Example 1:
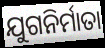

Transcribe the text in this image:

ଯୁଗନିର୍ମାତା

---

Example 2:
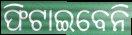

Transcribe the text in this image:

ଫିଟାଇବେନି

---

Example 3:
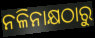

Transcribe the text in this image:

ନଳିନାକ୍ଷଠାରୁ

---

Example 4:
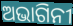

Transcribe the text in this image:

ଅଭାଗିନୀ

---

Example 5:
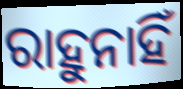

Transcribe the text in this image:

ରାହୁନାହିଁ